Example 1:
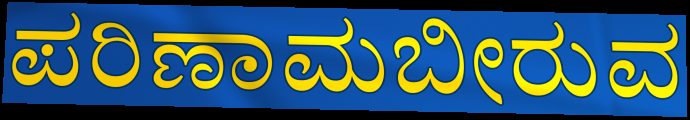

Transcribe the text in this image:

ಪರಿಣಾಮಬೀರುವ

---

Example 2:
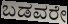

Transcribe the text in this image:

ಬಡವರೇ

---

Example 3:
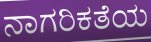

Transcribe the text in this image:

ನಾಗರಿಕತೆಯ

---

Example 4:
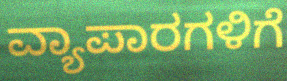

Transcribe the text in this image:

ವ್ಯಾಪಾರಗಳಿಗೆ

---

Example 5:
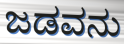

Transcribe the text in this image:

ಜಡವನು